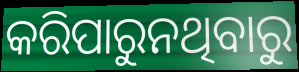
କରିପାରୁନଥିବାରୁ